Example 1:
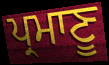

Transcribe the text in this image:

ਪ੍ਰਮਾਣੂ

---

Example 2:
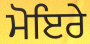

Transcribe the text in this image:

ਮੋਇਰੇ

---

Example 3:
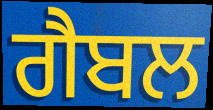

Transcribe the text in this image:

ਗੈਬਲ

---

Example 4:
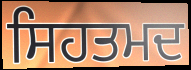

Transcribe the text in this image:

ਸਿਹਤਮਦ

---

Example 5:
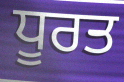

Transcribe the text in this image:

ਧੂਰਤ